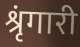
श्रृंगारी